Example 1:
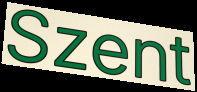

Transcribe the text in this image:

Szent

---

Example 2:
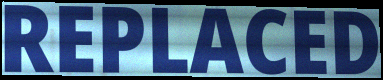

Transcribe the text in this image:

REPLACED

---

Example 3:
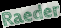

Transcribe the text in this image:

Raeder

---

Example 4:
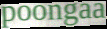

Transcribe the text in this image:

poongaa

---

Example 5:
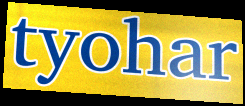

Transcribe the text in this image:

tyohar